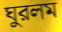
ঘুরলম